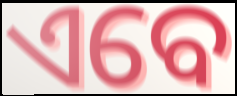
ଏବେ